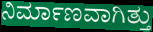
ನಿರ್ಮಾಣವಾಗಿತ್ತು